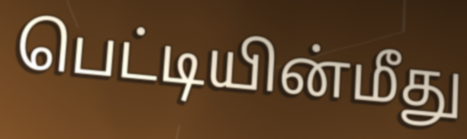
பெட்டியின்மீது